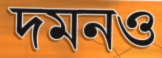
দমনও